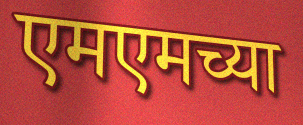
एमएमच्या